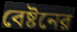
বেষ্টনের